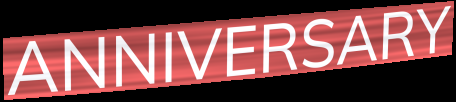
ANNIVERSARY